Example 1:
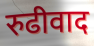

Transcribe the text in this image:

रुढीवाद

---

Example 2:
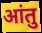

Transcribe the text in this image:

आंतु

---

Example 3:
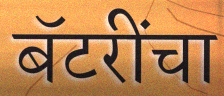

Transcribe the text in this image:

बॅटरींचा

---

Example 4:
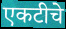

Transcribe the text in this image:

एकटीचे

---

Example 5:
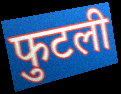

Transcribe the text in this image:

फुटली